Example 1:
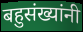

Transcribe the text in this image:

बहुसंख्यांनी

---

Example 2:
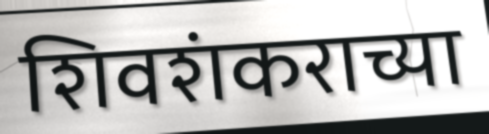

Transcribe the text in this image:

शिवशंकराच्या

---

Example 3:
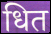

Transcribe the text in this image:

धित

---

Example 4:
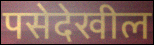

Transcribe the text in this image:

पसेदेखील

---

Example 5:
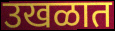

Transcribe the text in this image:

उखळात